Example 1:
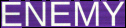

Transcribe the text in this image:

ENEMY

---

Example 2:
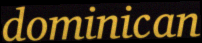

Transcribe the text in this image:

dominican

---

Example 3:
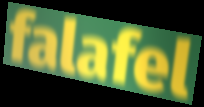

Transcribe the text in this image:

falafel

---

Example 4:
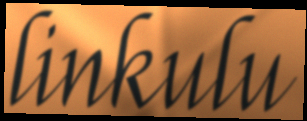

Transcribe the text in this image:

linkulu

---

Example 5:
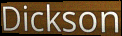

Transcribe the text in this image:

Dickson